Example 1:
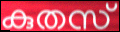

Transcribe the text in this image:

കുതസ്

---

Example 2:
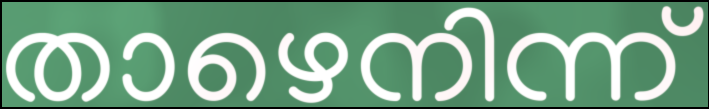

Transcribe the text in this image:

താഴെനിന്ന്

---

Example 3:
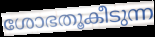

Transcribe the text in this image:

ശോഭതൂകീടുന്ന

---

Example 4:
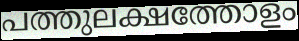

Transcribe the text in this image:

പത്തുലക്ഷത്തോളം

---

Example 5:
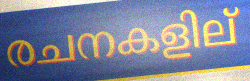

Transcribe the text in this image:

രചനകളില്